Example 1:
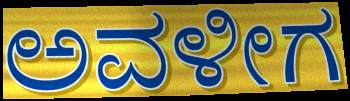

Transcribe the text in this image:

ಅವಳೀಗ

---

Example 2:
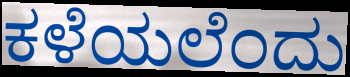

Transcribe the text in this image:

ಕಳೆಯಲೆಂದು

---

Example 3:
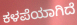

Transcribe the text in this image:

ಕಳಪೆಯಾಗಿದೆ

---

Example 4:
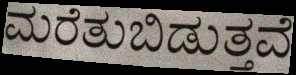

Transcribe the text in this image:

ಮರೆತುಬಿಡುತ್ತವೆ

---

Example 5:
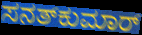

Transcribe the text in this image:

ಸನತ್‌ಕುಮಾರ್